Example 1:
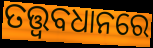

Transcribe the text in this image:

ତତ୍ତ୍ଵବଧାନରେ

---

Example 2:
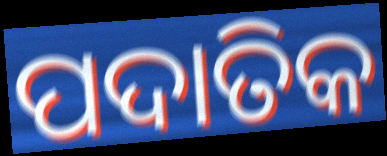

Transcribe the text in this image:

ପଦାତିକ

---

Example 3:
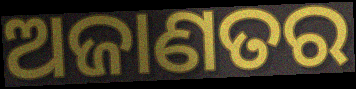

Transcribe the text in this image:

ଅଜାଣତର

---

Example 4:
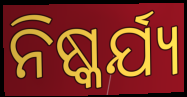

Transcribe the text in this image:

ନିଷ୍କର୍ଯ୍ୟ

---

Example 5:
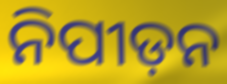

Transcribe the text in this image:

ନିପୀଡ଼ନ